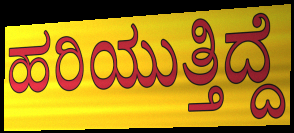
ಹರಿಯುತ್ತಿದ್ದೆ